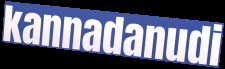
kannadanudi